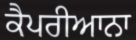
ਕੈਪਰੀਆਨਾ